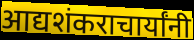
आद्यशंकराचार्यांनी